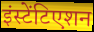
इंस्टेंटिएशन